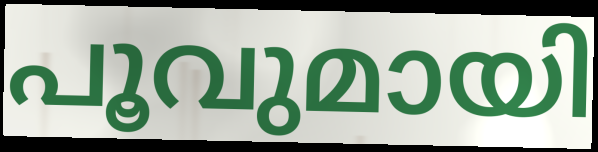
പൂവുമായി